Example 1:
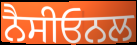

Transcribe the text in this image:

ਨੈਸੀਓਨਲ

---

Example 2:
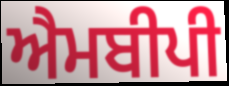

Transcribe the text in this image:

ਐਮਬੀਪੀ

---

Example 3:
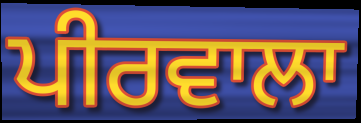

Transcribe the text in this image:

ਪੀਰਵਾਲਾ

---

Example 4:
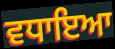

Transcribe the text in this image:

ਵਧਾਇਆ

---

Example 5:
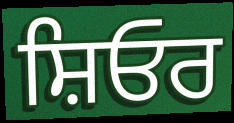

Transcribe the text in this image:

ਸ਼ਿਓਰ